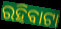
ରହିବାଟା